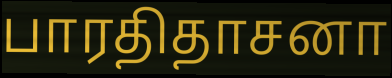
பாரதிதாசனா